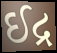
ઈદ્ર